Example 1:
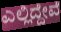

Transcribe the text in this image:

ಎಲ್ಲಿದ್ದೇವೆ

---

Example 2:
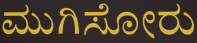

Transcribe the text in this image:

ಮುಗಿಸೋರು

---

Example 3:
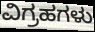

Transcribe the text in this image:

ವಿಗ್ರಹಗಳು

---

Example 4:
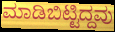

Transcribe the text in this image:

ಮಾಡಿಬಿಟ್ಟಿದ್ದವು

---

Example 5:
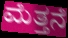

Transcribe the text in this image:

ಮೆತ್ತನೆ